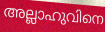
അല്ലാഹുവിനെ